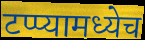
टप्प्यामध्येच